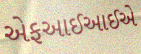
એફઆઈઆઈએ